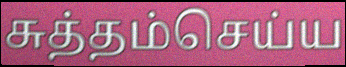
சுத்தம்செய்ய